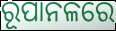
ରୂପାନଳରେ